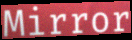
Mirror